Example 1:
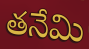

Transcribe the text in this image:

తనేమి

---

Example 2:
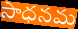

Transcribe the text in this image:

సాధనమ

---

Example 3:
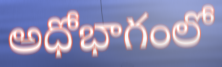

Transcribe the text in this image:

అధోభాగంలో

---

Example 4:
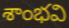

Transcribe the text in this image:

శాంభవి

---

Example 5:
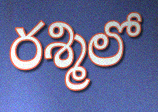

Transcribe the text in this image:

రశ్మిలో